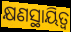
କ୍ଷଣସ୍ଥାୟିତ୍ୱ